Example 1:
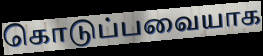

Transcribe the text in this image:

கொடுப்பவையாக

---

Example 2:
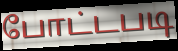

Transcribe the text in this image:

போட்டபடி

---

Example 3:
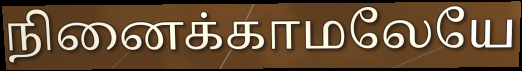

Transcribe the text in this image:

நினைக்காமலேயே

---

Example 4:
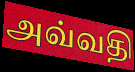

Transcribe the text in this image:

அவ்வதி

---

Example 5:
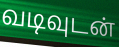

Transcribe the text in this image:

வடிவுடன்